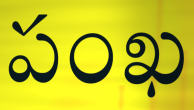
పంఖ